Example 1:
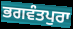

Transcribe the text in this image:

ਭਗਵੰਤਪੁਰਾ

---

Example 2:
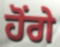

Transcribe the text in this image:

ਹੋਂਗੇ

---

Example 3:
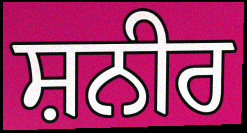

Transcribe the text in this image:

ਸ਼ਨੀਰ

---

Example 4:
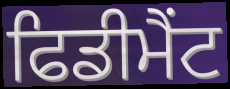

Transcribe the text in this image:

ਫਿਡੀਮੈਂਟ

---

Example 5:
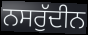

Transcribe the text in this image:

ਨਸਰੁੱਦੀਨ